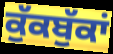
ਕੁੱਕਬੁੱਕਾਂ